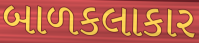
બાળકલાકાર